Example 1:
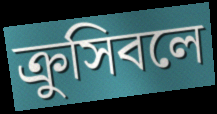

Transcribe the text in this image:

ক্রুসিবলে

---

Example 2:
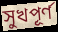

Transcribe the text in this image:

সুখপূর্ণ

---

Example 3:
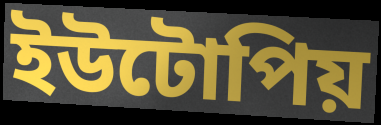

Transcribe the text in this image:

ইউটোপিয়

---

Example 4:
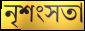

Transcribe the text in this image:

নৃশংসতা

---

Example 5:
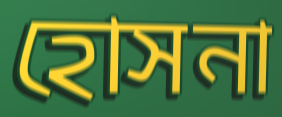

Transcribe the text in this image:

হোসনা